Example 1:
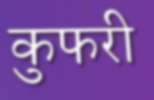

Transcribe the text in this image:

कुफरी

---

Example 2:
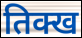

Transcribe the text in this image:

तिक्ख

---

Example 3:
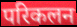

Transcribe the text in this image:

परिकलन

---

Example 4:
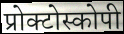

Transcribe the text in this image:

प्रोक्टोस्कोपी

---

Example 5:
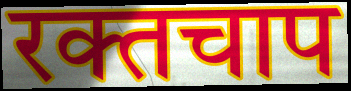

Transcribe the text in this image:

रक्तचाप